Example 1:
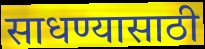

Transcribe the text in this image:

साधण्यासाठी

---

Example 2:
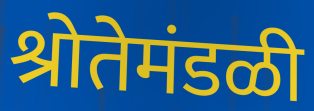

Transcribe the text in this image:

श्रोतेमंडळी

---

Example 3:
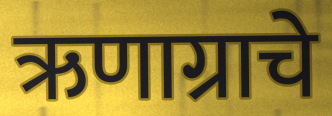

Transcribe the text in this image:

ऋणाग्राचे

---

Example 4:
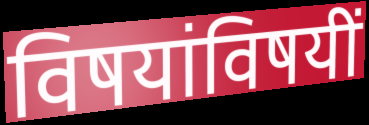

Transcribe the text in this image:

विषयांविषयीं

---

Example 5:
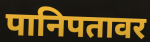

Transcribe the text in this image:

पानिपतावर